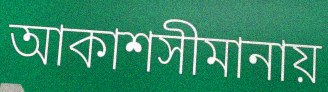
আকাশসীমানায়